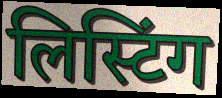
लिस्टिंग